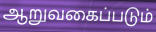
ஆறுவகைப்படும்